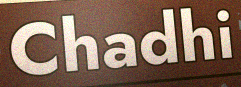
Chadhi